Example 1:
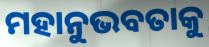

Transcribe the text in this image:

ମହାନୁଭବତାକୁ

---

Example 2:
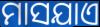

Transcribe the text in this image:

ମାସଯାଏ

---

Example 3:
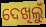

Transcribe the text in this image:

ଦେଖିଲୁଁ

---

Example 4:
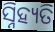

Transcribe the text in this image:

ସ୍ନିହ୍ୟତି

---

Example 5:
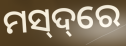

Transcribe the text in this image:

ମସ୍‌ଦ୍‌ରେ